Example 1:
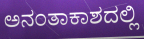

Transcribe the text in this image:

ಅನಂತಾಕಾಶದಲ್ಲಿ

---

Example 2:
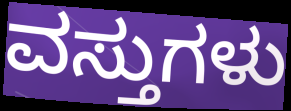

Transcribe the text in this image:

ವಸ್ತುಗಳು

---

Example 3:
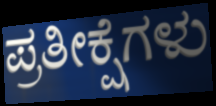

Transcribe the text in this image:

ಪ್ರತೀಕ್ಷೆಗಳು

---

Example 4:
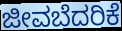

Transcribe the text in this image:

ಜೀವಬೆದರಿಕೆ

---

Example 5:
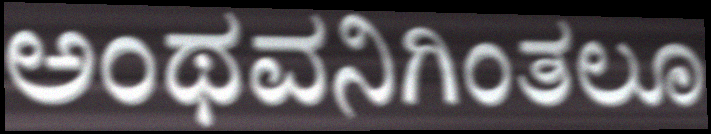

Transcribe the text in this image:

ಅಂಥವನಿಗಿಂತಲೂ